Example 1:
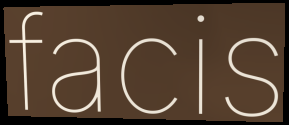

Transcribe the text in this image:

facis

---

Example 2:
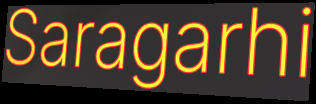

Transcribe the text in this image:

Saragarhi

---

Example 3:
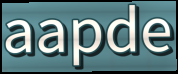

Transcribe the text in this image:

aapde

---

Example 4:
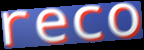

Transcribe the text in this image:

reco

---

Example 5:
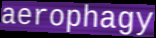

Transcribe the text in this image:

aerophagy